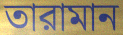
তারামান